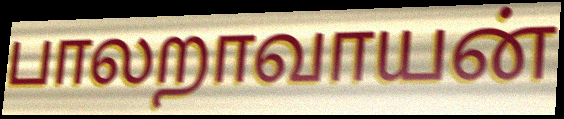
பாலறாவாயன்